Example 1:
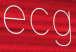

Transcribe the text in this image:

ecg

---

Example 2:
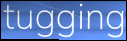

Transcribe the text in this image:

tugging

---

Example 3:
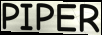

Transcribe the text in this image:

PIPER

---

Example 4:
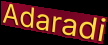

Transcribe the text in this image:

Adaradi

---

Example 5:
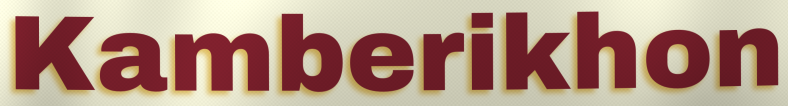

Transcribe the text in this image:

Kamberikhon